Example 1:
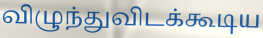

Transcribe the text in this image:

விழுந்துவிடக்கூடிய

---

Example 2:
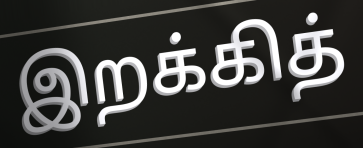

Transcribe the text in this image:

இறக்கித்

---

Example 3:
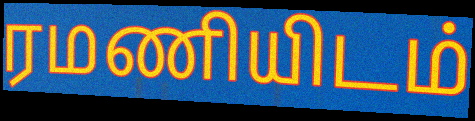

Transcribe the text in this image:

ரமணியிடம்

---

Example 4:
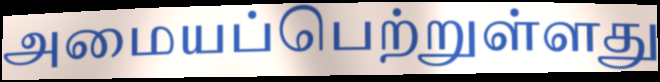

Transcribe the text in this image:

அமையப்பெற்றுள்ளது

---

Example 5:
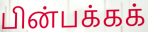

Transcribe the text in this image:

பின்பக்கக்